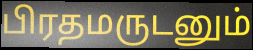
பிரதமருடனும்